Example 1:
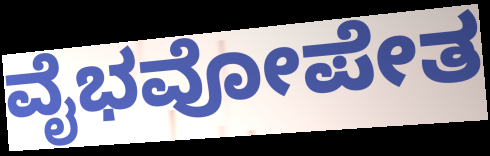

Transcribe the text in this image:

ವೈಭವೋಪೇತ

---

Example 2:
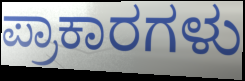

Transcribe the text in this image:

ಪ್ರಾಕಾರಗಳು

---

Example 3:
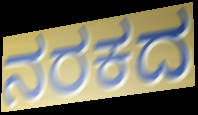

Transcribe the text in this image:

ನರಕದ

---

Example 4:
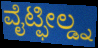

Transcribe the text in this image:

ವೈಟ್ಫೀಲ್ಡ್ನ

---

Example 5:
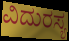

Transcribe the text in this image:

ವಿದುರಸ್ಯ